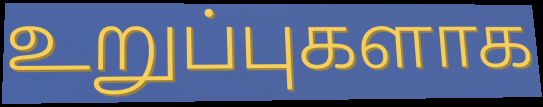
உறுப்புகளாக